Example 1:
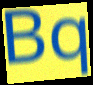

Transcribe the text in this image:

Bq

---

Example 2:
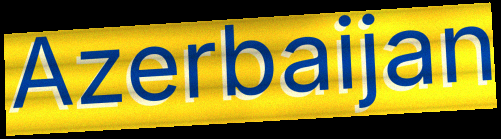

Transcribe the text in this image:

Azerbaijan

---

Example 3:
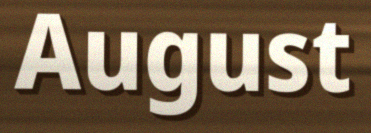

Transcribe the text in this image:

August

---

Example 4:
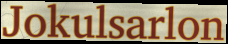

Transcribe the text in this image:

Jokulsarlon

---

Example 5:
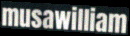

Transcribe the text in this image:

musawilliam